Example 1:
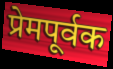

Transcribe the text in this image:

प्रेमपूर्वक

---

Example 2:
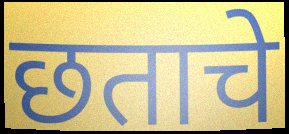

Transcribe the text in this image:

छताचे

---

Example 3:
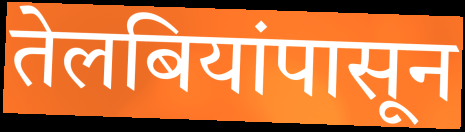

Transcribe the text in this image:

तेलबियांपासून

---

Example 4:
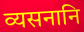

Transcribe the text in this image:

व्यसनानि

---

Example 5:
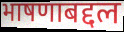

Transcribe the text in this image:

भाषणाबद्दल